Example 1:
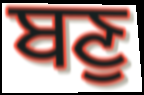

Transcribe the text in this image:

ਬਣੁ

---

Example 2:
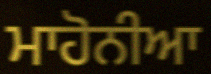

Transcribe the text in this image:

ਮਾਹੋਨੀਆ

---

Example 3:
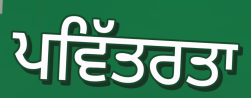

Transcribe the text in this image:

ਪਵਿੱਤਰਤਾ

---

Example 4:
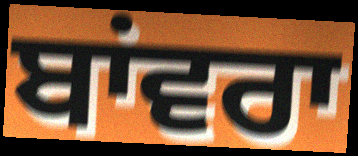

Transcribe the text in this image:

ਬਾਂਵਰਾ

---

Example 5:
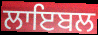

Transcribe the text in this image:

ਲਾਇਬਲ